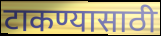
टाकण्यासाठी